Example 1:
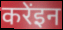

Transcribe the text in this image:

करेंइन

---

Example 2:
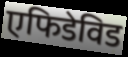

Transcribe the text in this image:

एफिडेविड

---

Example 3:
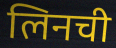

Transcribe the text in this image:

लिनची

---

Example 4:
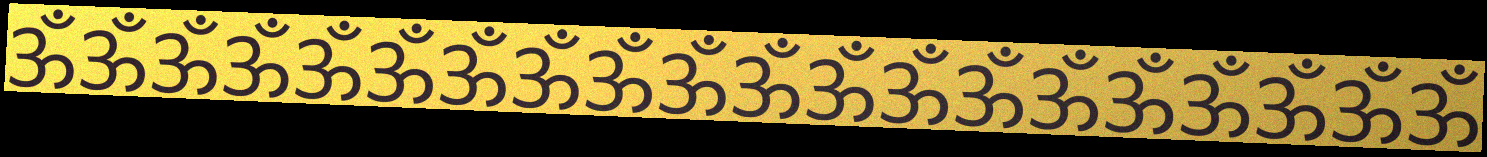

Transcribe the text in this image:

ॐॐॐॐॐॐॐॐॐॐॐॐॐॐॐॐॐॐॐॐ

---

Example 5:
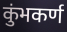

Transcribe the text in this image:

कुंभकर्ण